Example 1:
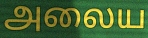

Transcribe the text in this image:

அலைய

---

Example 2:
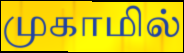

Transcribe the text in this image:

முகாமில்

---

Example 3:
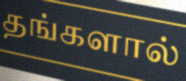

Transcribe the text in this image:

தங்களால்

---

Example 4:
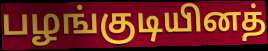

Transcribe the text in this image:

பழங்குடியினத்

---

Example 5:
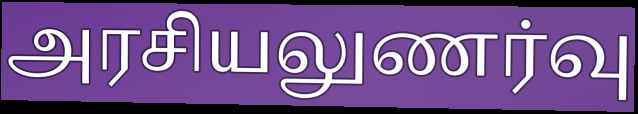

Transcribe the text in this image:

அரசியலுணர்வு